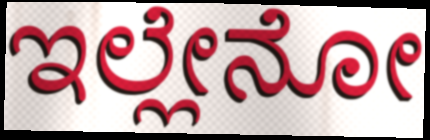
ಇಲ್ಲೇನೋ